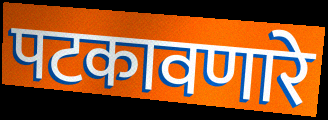
पटकावणारे